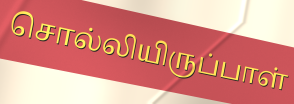
சொல்லியிருப்பாள்